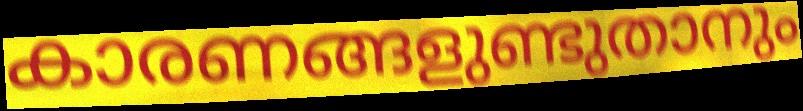
കാരണങ്ങളുണ്ടുതാനും